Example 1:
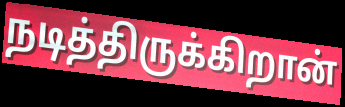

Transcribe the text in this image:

நடித்திருக்கிறான்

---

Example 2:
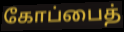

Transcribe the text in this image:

கோப்பைத்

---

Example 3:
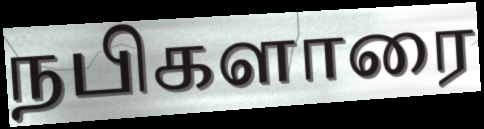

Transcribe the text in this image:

நபிகளாரை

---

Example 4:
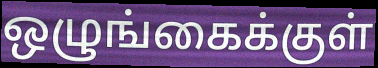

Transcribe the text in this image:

ஒழுங்கைக்குள்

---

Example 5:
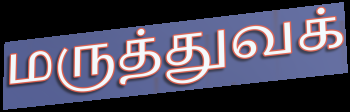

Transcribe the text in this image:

மருத்துவக்